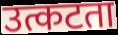
उत्कटता